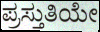
ಪ್ರಸ್ತುತಿಯೇ